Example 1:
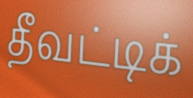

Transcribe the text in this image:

தீவட்டிக்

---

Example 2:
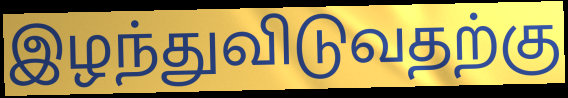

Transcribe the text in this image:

இழந்துவிடுவதற்கு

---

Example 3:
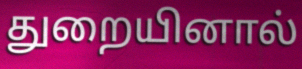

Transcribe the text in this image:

துறையினால்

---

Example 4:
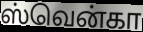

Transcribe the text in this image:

ஸ்வென்கா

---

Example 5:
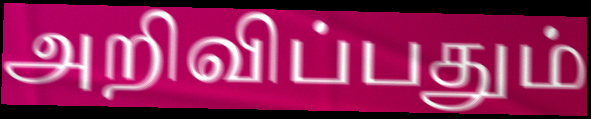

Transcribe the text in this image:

அறிவிப்பதும்